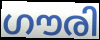
ഗൗരി